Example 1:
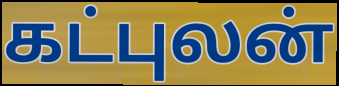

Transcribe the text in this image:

கட்புலன்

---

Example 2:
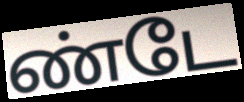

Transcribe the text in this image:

ண்டே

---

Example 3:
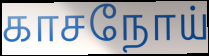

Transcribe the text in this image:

காசநோய்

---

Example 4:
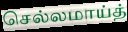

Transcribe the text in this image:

செல்லமாய்த்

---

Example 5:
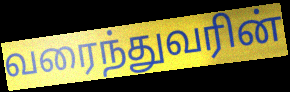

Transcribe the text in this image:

வரைந்துவரின்